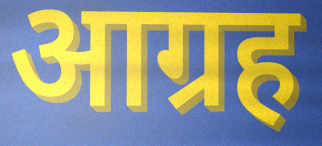
आग्रह